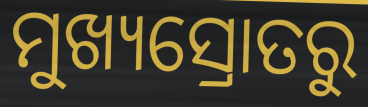
ମୁଖ୍ୟସ୍ରୋତରୁ